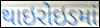
થાઇરોઇડમાં